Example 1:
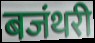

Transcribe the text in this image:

बजंथरी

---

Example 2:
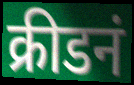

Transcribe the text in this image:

क्रीडनं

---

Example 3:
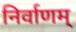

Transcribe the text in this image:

निर्वाणम्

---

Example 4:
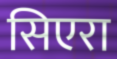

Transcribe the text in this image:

सिएरा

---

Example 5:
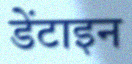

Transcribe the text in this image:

डेंटाइन